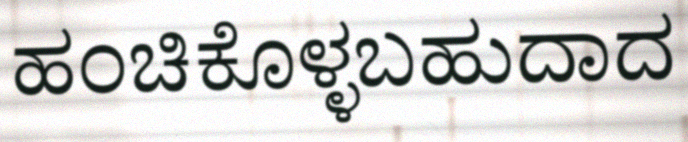
ಹಂಚಿಕೊಳ್ಳಬಹುದಾದ